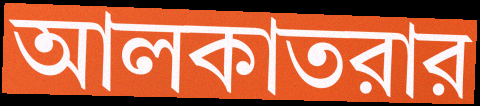
আলকাতরার